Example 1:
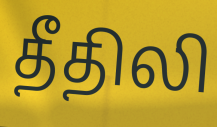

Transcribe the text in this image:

தீதிலி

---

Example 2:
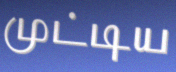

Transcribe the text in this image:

முட்டிய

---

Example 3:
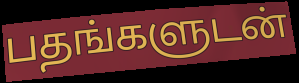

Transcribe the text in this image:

பதங்களுடன்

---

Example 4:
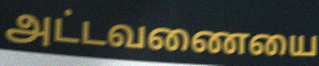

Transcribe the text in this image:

அட்டவணையை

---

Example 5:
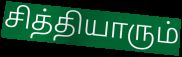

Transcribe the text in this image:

சித்தியாரும்